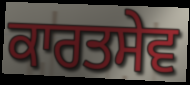
ਕਾਰਤਸੇਵ